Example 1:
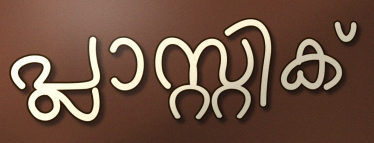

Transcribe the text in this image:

പ്ലാസ്റ്റിക്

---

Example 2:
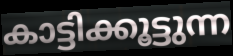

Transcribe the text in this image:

കാട്ടിക്കൂട്ടുന്ന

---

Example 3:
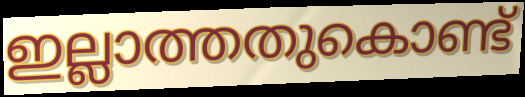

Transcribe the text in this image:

ഇല്ലാത്തതുകൊണ്ട്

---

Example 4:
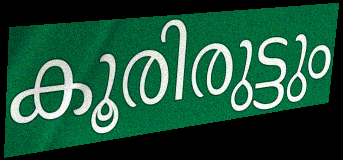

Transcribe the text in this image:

കൂരിരുട്ടും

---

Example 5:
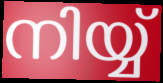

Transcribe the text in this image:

നിയ്യ്